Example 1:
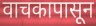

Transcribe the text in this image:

वाचकापासून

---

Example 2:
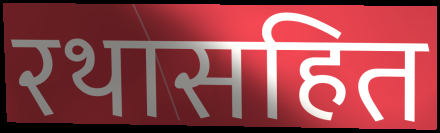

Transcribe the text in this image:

रथासहित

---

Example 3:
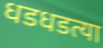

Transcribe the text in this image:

धडधडत्या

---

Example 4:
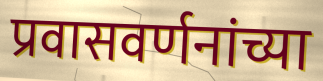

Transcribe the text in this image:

प्रवासवर्णनांच्या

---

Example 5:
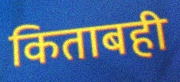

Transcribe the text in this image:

किताबही